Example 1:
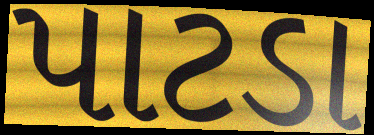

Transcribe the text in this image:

પાટડા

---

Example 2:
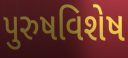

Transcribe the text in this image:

પુરુષવિશેષ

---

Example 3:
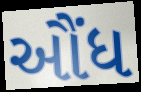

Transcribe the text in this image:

ઔંધ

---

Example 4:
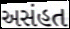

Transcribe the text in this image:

અસંહત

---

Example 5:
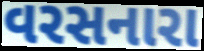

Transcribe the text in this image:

વરસનારા